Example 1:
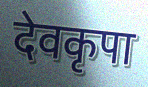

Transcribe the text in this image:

देवकृपा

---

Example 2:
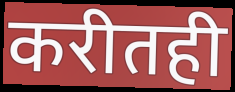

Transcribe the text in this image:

करीतही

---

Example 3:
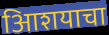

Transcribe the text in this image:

आिशयाचा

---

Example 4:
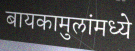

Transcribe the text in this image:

बायकामुलांमध्ये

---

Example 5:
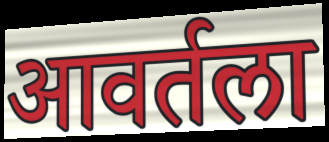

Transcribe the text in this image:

आवर्तला